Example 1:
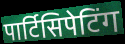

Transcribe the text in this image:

पार्टिसिपेटिंग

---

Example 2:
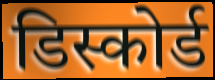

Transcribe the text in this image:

डिस्कोर्ड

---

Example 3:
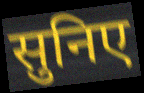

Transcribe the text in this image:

सुनिए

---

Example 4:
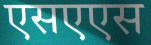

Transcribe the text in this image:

एसएएस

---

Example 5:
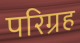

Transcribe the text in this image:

परिग्रह